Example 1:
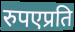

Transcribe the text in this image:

रुपएप्रति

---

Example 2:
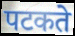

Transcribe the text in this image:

पटकते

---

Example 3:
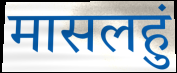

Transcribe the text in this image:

मासलहुं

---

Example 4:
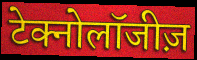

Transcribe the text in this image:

टेक्नोलॉजीज़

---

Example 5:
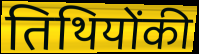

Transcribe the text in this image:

तिथियोंकी